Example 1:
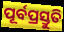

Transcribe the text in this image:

ପୂର୍ବପ୍ରସ୍ତୁତି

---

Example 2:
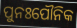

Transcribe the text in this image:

ପୁନଃପୌନିକ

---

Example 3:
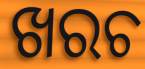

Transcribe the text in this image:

ଖରଚ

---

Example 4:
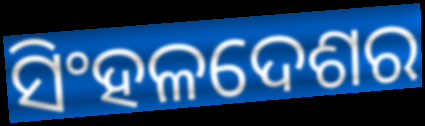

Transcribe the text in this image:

ସିଂହଳଦେଶର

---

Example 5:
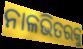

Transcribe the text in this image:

ନାଳଭିତରକୁ